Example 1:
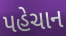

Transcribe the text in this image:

પહેચાન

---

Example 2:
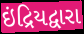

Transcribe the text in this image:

ઇંદ્રિયદ્વારા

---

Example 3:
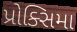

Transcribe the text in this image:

પ્રોક્સિમા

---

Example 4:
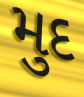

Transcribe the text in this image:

મુદ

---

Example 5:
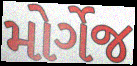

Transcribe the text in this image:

મોર્ગેજ